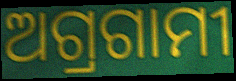
ଅଗ୍ରଗାମୀ